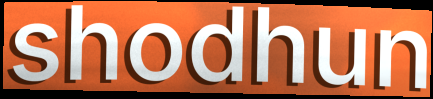
shodhun